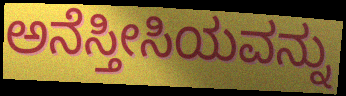
ಅನೆಸ್ತೀಸಿಯವನ್ನು